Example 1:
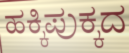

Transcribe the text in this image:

ಹಕ್ಕಿಪುಕ್ಕದ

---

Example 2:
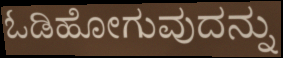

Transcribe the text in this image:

ಓಡಿಹೋಗುವುದನ್ನು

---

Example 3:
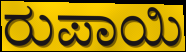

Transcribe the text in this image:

ರುಪಾಯಿ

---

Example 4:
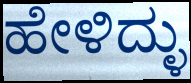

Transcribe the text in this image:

ಹೇಳಿದ್ಳು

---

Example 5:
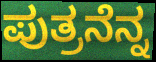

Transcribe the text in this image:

ಪುತ್ರನೆನ್ನ